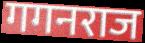
गगनराज